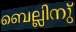
ബെല്ലിനു്